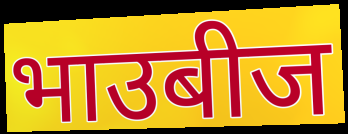
भाउबीज